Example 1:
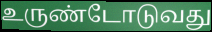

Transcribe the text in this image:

உருண்டோடுவது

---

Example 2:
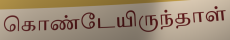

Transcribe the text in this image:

கொண்டேயிருந்தாள்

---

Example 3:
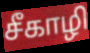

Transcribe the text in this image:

சீகாழி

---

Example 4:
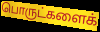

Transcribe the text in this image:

பொருட்களைக்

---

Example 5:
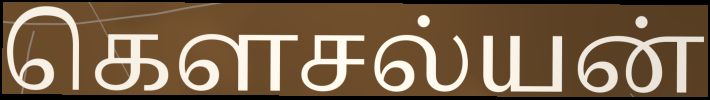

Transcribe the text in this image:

கௌசல்யன்